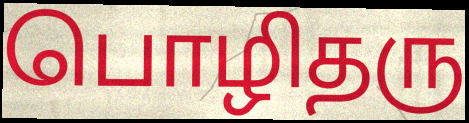
பொழிதரு